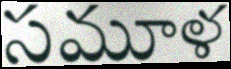
సమూళ